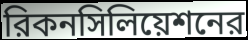
রিকনসিলিয়েশনের